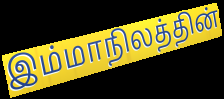
இம்மாநிலத்தின்